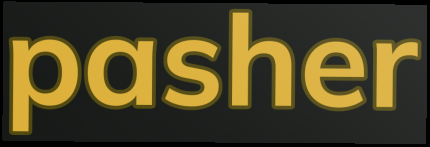
pasher